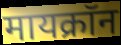
मायक्रॉन